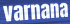
varnana